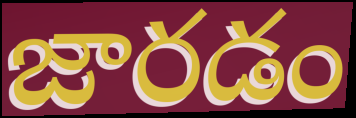
జారడం